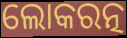
ଲୋକରତ୍ନ